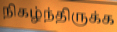
நிகழ்ந்திருக்க